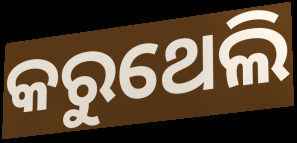
କରୁଥେଲି